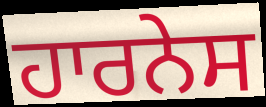
ਹਾਰਨੇਸ